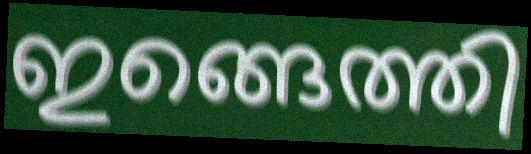
ഇങ്ങെത്തി